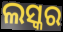
ଲସ୍କର